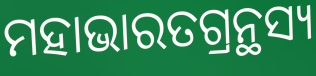
ମହାଭାରତଗ୍ରନ୍ଥସ୍ୟ